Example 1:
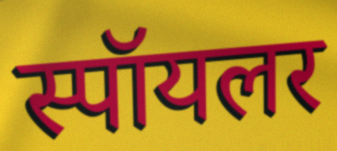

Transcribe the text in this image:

स्पॉयलर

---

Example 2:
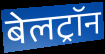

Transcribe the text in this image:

बेलट्रॉन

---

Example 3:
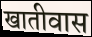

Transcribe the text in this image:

खातीवास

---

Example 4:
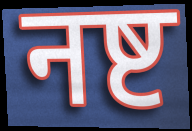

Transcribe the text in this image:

नष्ट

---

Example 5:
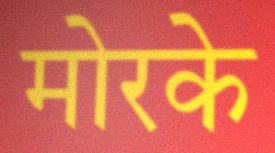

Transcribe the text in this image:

मोरके